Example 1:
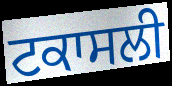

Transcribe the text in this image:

ਟਕਾਸਲੀ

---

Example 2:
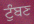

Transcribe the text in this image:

ਟੁੰਬਣ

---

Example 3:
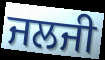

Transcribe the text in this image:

ਜਲਜੀ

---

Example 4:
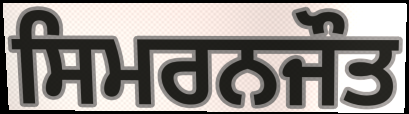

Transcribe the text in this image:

ਸਿਮਰਨਜੌਤ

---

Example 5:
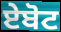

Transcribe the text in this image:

ਏਬੋਟ